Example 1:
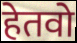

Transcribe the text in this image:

हेतवो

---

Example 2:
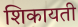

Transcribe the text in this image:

शिकायती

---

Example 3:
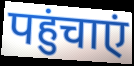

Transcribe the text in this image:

पहुंचाएं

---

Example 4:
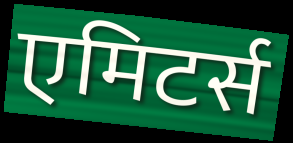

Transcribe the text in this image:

एमिटर्स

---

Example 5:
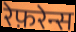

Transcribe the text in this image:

रेफ़रेन्स